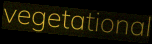
vegetational